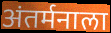
अंतर्मनाला